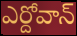
ఎర్దోవాన్